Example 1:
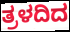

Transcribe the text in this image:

ತ್ರಳದಿದ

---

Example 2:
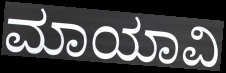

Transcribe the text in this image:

ಮಾಯಾವಿ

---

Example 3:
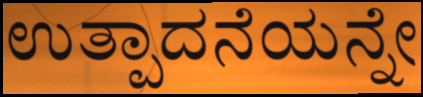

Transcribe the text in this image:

ಉತ್ಪಾದನೆಯನ್ನೇ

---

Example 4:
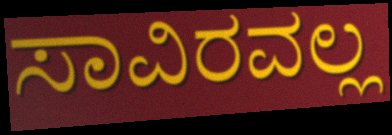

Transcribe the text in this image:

ಸಾವಿರವಲ್ಲ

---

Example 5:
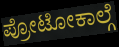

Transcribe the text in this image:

ಪ್ರೋಟೋಕಾಲ್ಗೆ